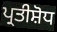
ਪ੍ਰਤੀਸ਼ੋਧ